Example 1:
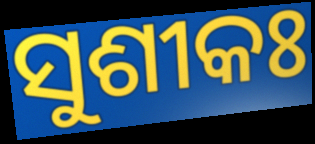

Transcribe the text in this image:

ସୁଶୀକଃ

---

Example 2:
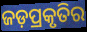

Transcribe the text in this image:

ଜଡ଼ପ୍ରକୃତିର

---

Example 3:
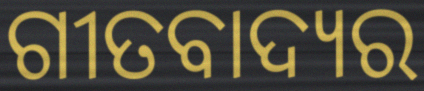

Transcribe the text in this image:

ଗୀତବାଦ୍ୟର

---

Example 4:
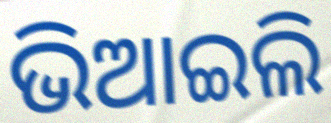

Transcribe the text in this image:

ଭିଆଇଲି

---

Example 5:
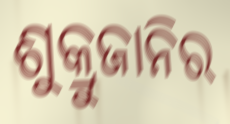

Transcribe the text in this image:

ଶୁକ୍ରୁଜାନିର